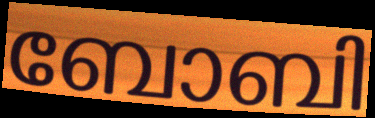
ബോബി